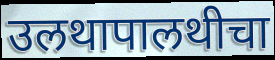
उलथापालथीचा